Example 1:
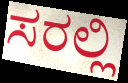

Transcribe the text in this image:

ಸರಲ್ಲಿ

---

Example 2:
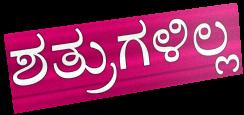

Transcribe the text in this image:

ಶತ್ರುಗಳಿಲ್ಲ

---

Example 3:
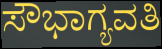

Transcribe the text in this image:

ಸೌಭಾಗ್ಯವತಿ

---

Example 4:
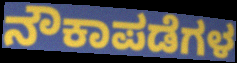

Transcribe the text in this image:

ನೌಕಾಪಡೆಗಳ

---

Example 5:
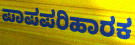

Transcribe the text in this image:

ಪಾಪಪರಿಹಾರಕ